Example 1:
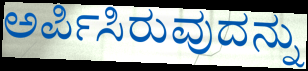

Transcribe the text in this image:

ಅರ್ಪಿಸಿರುವುದನ್ನು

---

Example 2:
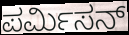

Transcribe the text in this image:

ಪರ್ಮಿಸನ್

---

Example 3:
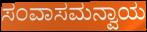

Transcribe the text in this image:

ಸಂವಾಸಮನ್ವಾಯ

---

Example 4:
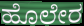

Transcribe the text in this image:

ಹೊಲೇರ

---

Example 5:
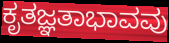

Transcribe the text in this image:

ಕೃತಜ್ಞತಾಭಾವವು